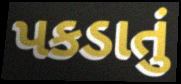
પકડાતું